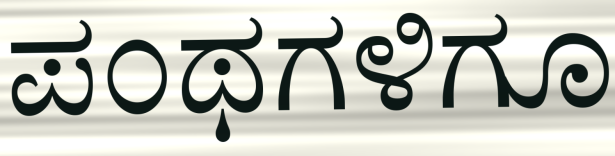
ಪಂಥಗಳಿಗೂ